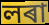
লৰা